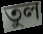
তুল